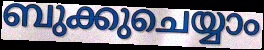
ബുക്കുചെയ്യാം